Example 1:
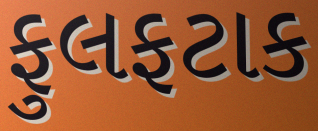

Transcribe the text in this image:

ફુલફટાક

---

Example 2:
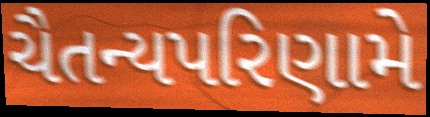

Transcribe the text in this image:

ચૈતન્યપરિણામે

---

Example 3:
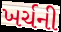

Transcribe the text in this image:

ખર્ચની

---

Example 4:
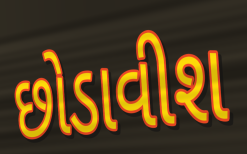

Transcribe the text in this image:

છોડાવીશ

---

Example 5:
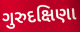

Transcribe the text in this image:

ગુરુદક્ષિણા